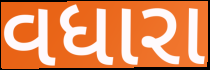
વધારા